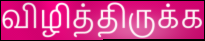
விழித்திருக்க